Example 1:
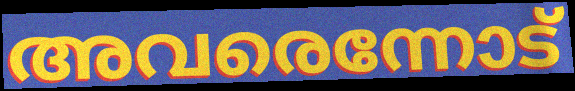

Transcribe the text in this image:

അവരെന്നോട്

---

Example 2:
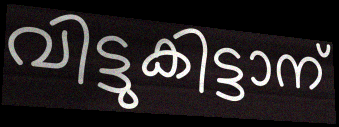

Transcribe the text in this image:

വിട്ടുകിട്ടാന്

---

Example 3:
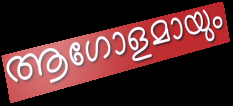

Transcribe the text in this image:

ആഗോളമായും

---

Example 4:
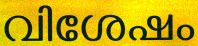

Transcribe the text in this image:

വിശേഷം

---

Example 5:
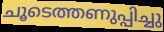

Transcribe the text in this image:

ചൂടെത്തണുപ്പിച്ചു